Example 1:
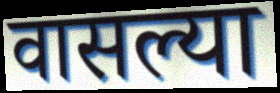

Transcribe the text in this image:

वासल्या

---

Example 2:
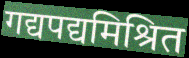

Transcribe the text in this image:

गद्यपद्यमिश्रित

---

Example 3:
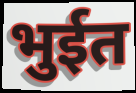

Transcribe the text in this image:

भुईत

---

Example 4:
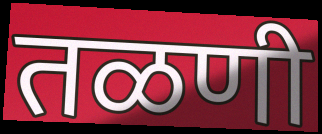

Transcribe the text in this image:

तळणी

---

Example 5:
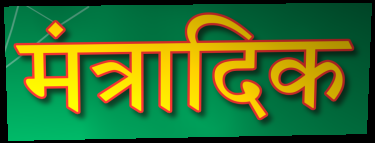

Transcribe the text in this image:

मंत्रादिक